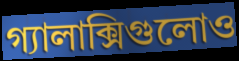
গ্যালাক্সিগুলোও